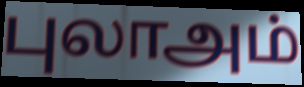
புலாஅம்